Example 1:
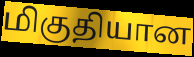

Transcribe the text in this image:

மிகுதியான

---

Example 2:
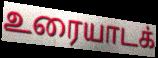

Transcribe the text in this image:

உரையாடக்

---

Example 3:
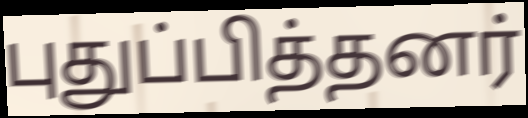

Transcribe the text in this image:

புதுப்பித்தனர்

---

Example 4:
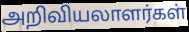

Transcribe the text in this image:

அறிவியலாளர்கள்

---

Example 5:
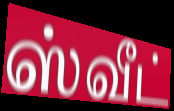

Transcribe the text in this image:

ஸ்வீட்